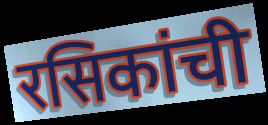
रसिकांची